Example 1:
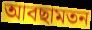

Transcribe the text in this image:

আবছামতন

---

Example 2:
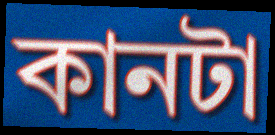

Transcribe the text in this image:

কানটা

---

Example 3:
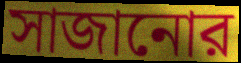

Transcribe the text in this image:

সাজানোর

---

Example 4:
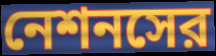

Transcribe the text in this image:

নেশনসের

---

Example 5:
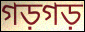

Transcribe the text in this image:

গড়গড়